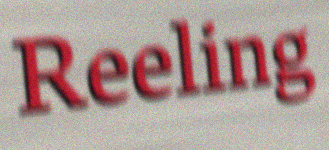
Reeling